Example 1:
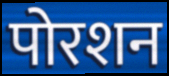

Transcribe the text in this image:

पोरशन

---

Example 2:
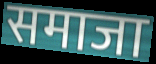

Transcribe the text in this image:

समाजा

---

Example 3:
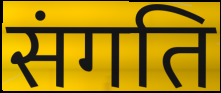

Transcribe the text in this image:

संगति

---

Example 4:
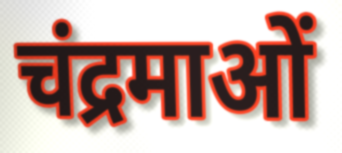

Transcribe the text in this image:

चंद्रमाओं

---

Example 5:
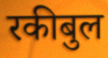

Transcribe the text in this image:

रकीबुल